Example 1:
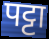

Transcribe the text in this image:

पट्टा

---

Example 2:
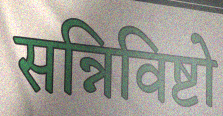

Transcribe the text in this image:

सन्निविष्टो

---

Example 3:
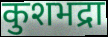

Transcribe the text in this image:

कुशभद्रा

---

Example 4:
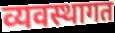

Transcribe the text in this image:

व्यवस्थागत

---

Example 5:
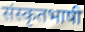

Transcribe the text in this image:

संस्कृतभाषी